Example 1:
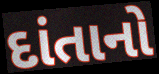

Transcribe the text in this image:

દાંતાનો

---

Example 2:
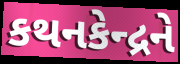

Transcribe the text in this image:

કથનકેન્દ્રને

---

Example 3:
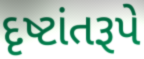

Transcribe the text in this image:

દૃષ્ટાંતરૂપે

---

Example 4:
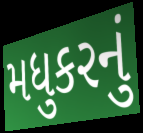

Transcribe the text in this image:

મધુકરનું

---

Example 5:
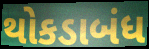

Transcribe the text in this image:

થોકડાબંધ